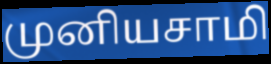
முனியசாமி